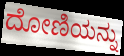
ದೋಣಿಯನ್ನು